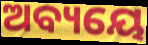
ଅବ୍ୟୟେ